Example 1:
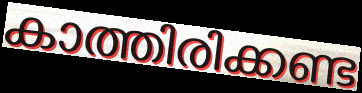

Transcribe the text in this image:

കാത്തിരിക്കണ്ട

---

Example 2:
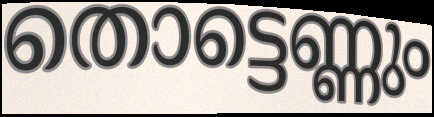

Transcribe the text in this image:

തൊട്ടെണ്ണും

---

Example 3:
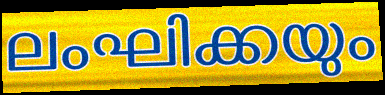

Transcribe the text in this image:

ലംഘിക്കയും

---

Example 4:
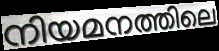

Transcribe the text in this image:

നിയമനത്തിലെ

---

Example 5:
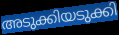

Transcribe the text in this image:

അടുക്കിയടുക്കി